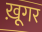
ख़ूगर